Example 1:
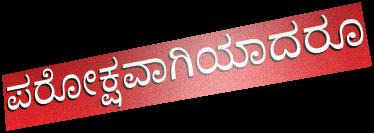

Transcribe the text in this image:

ಪರೋಕ್ಷವಾಗಿಯಾದರೂ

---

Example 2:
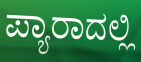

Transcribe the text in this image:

ಪ್ಯಾರಾದಲ್ಲಿ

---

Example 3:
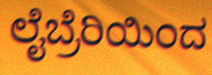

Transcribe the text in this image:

ಲೈಬ್ರೆರಿಯಿಂದ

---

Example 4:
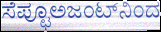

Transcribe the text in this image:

ಸೆಪ್ಟೂಅಜಂಟ್‌ನಿಂದ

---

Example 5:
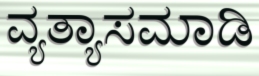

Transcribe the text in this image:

ವ್ಯತ್ಯಾಸಮಾಡಿ